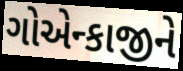
ગોએન્કાજીને